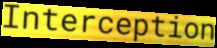
Interception